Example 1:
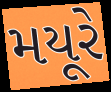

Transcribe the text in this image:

મયૂરે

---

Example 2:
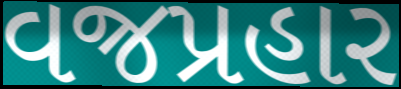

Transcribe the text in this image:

વજ્રપ્રહાર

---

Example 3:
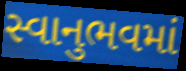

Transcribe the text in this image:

સ્વાનુભવમાં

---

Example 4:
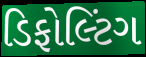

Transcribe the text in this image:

ડિફોલ્ટિંગ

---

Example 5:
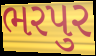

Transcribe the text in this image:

ભરપુર